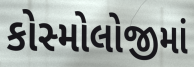
કોસ્મોલોજીમાં